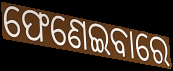
ଫେଣେଇବାରେ